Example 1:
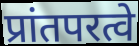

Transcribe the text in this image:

प्रांतपरत्वे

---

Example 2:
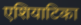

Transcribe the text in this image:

एशियाटिका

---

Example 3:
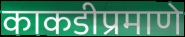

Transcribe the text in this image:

काकडीप्रमाणे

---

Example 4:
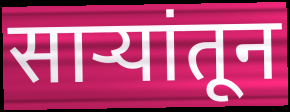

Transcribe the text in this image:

साऱ्यांतून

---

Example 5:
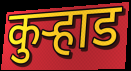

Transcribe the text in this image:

कुर्‍हाड